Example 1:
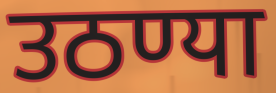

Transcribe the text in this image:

उठण्या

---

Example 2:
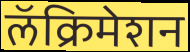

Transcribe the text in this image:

लॅक्रिमेशन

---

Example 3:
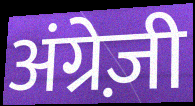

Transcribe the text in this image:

अंग्रेज़ी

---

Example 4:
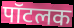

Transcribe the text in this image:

पॉटलक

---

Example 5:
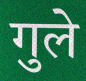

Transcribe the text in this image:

गुले